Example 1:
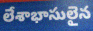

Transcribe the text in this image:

లేశాభాసులైన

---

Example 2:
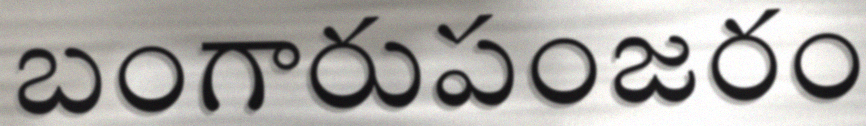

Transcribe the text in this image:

బంగారుపంజరం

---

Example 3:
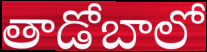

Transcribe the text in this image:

తాడోబాలో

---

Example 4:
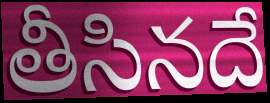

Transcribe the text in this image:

తీసినదే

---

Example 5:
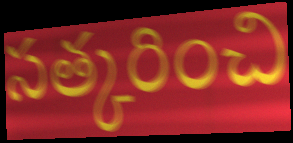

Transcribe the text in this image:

సత్కరించి